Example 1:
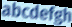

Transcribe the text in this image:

abcdefgh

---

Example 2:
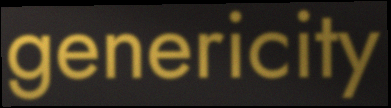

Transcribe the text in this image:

genericity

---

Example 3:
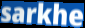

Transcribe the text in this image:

sarkhe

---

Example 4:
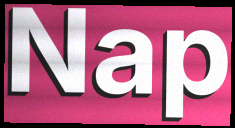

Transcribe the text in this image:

Nap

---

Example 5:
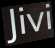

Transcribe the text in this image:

Jivi